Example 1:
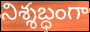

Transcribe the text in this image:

నిశ్శబ్ధంగా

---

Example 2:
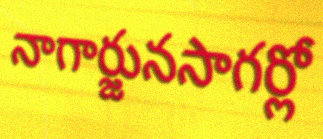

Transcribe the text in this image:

నాగార్జునసాగర్లో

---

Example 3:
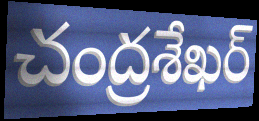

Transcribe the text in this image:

చంద్రశేఖర్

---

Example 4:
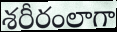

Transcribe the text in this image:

శరీరంలాగా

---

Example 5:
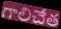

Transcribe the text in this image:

గాలిచేత